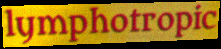
lymphotropic